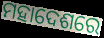
ମହାଦେଶରେ